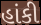
હાંકી